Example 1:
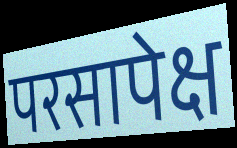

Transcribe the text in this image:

परसापेक्ष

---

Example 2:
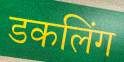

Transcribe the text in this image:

डकलिंग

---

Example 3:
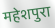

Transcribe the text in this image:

महेशपुरा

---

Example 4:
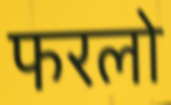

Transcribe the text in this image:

फरलो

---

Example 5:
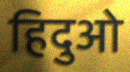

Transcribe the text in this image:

हिदुओ